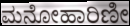
ಮನೋಹಾರಿಣೀ